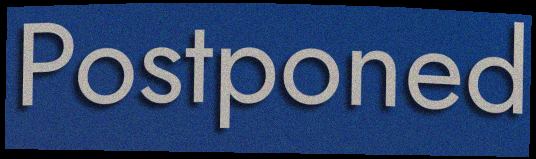
Postponed